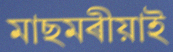
মাছমৰীয়াই